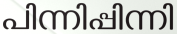
പിന്നിപ്പിന്നി